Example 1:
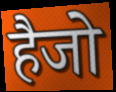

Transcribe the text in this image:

हैजो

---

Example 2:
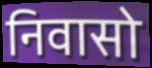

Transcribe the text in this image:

निवासो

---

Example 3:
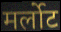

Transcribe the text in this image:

मर्लोट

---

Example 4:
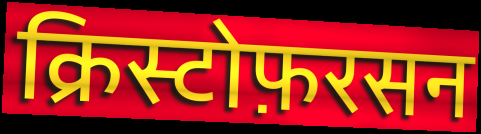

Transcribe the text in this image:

क्रिस्टोफ़रसन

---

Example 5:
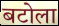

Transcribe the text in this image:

बटोला